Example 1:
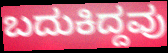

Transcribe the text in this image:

ಬದುಕಿದ್ದವು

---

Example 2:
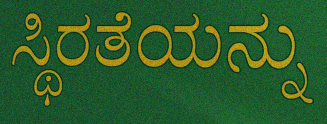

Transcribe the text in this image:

ಸ್ಥಿರತೆಯನ್ನು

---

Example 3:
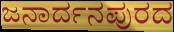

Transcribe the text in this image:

ಜನಾರ್ದನಪುರದ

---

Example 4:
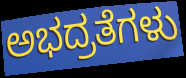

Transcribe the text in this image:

ಅಭದ್ರತೆಗಳು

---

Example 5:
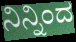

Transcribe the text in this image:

ನಿನ್ನಿಂದ